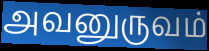
அவனுருவம்